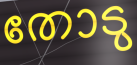
തോടു